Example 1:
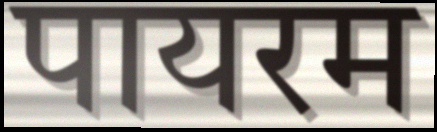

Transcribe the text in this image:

पायरम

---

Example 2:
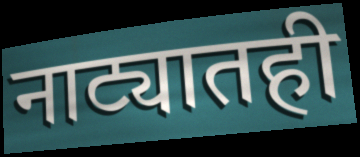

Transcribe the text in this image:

नाट्यातही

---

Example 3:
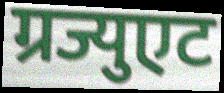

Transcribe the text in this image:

ग्रज्युएट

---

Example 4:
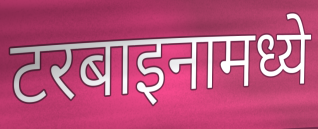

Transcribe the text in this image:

टरबाइनामध्ये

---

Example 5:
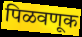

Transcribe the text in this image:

पिळवणूक